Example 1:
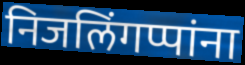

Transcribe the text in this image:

निजलिंगप्पांना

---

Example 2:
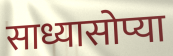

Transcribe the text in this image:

साध्यासोप्या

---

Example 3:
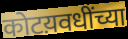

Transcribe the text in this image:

कोटय़वधींच्या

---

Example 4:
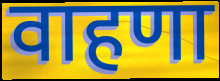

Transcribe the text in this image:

वाहणा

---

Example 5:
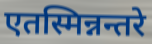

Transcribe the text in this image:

एतस्मिन्नन्तरे